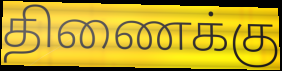
திணைக்கு